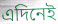
এদিনেই